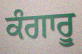
ਕੰਗਾਰੂ